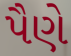
પૈણે